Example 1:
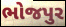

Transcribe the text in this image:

ભોજપુર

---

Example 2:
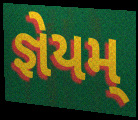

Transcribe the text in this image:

જ્ઞેયમ્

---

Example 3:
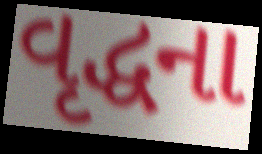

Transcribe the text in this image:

વૃદ્ધના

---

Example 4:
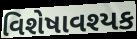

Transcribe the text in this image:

વિશેષાવશ્યક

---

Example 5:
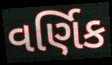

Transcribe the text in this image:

વર્ણિક